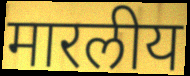
मारलीय